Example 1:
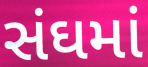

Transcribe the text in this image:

સંઘમાં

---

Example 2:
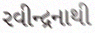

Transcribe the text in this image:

રવીન્દ્રનાથી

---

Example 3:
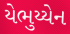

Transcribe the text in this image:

યેભુય્યેન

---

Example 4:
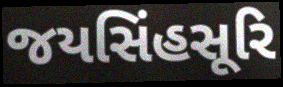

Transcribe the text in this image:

જયસિંહસૂરિ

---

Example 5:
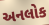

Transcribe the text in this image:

અનલોક